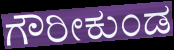
ಗೌರೀಕುಂಡ